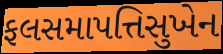
ફલસમાપત્તિસુખેન